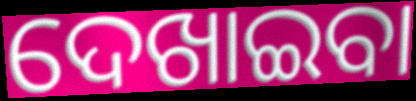
ଦେଖାଇବା